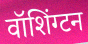
वॉशिंग्टन